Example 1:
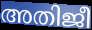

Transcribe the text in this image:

അതിജീ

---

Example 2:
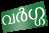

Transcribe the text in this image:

വർഗ്ഗ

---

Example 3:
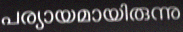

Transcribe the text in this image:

പര്യായമായിരുന്നു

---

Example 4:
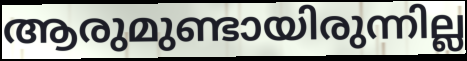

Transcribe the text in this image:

ആരുമുണ്ടായിരുന്നില്ല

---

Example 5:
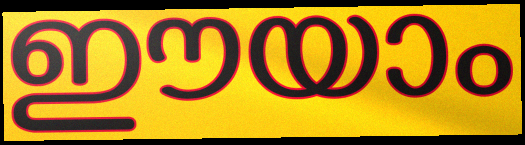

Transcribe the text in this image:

ഈയാം